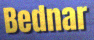
Bednar